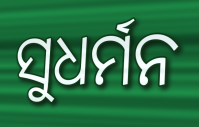
ସୁଧର୍ମନ